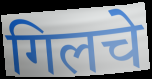
गिलचे